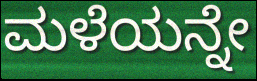
ಮಳೆಯನ್ನೇ